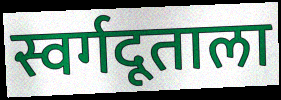
स्वर्गदूताला